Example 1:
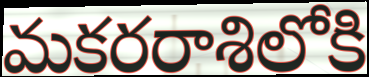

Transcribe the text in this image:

మకరరాశిలోకి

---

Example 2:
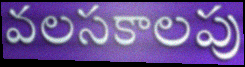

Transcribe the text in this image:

వలసకాలపు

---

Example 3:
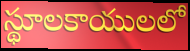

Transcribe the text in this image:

స్థూలకాయులలో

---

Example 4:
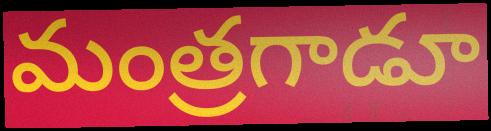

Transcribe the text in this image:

మంత్రగాడూ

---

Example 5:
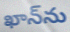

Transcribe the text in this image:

ఖాన్‌ను